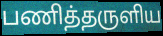
பணித்தருளிய